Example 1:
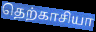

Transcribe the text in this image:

தெற்காசியா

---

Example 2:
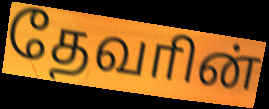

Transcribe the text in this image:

தேவரின்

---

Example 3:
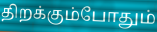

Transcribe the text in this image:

திறக்கும்போதும்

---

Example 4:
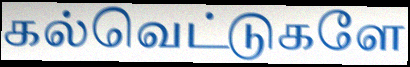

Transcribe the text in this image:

கல்வெட்டுகளே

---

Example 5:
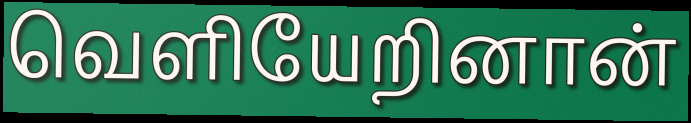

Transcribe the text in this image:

வெளியேறினான்